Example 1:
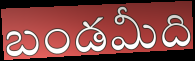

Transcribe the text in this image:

బండమీది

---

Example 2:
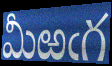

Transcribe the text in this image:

మీఱఁగ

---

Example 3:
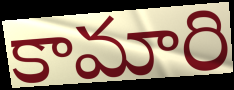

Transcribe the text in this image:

కామారి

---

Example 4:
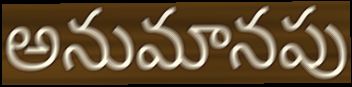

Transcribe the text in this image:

అనుమానపు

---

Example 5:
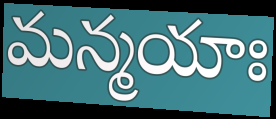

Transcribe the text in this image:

మన్మయాః